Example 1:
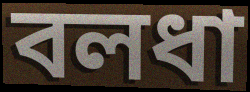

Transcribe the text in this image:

বলধা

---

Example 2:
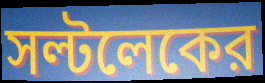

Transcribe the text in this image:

সল্টলেকের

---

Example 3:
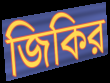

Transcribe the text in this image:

জিকির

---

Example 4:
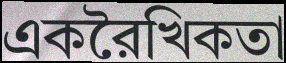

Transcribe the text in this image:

একরৈখিকতা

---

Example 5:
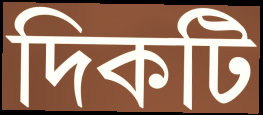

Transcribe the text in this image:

দিকটি